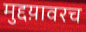
मुद्दय़ावरच